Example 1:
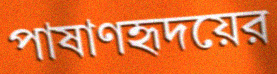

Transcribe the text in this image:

পাষাণহৃদয়ের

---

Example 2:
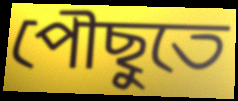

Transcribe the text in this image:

পৌছুতে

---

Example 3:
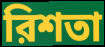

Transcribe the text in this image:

রিশতা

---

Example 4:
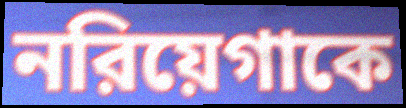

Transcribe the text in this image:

নরিয়েগাকে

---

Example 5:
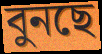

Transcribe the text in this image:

বুনছে